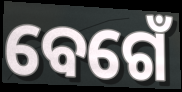
ବେଗେଁ